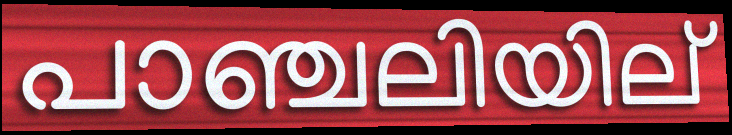
പാഞ്ചലിയില്